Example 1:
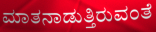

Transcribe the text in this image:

ಮಾತನಾಡುತ್ತಿರುವಂತೆ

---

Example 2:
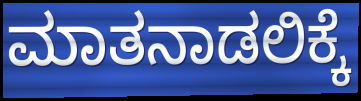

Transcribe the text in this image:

ಮಾತನಾಡಲಿಕ್ಕೆ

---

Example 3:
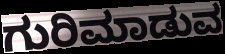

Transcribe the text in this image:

ಗುರಿಮಾಡುವ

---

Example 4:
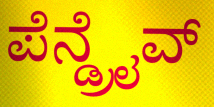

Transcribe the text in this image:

ಪೆನ್ಡ್ರೈವ್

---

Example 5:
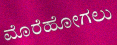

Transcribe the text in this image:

ಮೊರೆಹೋಗಲು